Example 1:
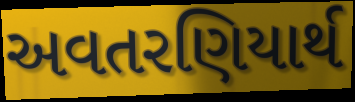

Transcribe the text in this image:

અવતરણિયાર્થ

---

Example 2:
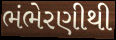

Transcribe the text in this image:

ભંભેરણીથી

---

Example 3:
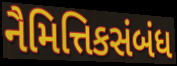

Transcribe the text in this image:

નૈમિત્તિકસંબંધ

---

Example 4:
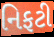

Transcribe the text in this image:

નિફટી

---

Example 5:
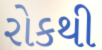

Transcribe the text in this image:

રોકથી